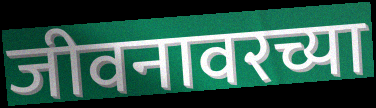
जीवनावरच्या